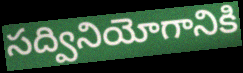
సద్వినియోగానికి